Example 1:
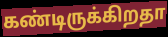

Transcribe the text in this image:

கண்டிருக்கிறதா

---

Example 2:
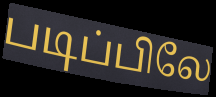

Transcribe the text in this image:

படிப்பிலே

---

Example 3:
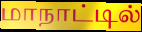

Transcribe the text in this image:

மாநாட்டில்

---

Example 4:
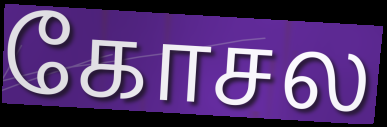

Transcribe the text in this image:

கோசல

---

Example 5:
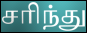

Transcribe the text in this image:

சரிந்து